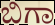
ಬಿಗಾ